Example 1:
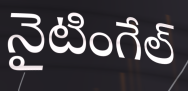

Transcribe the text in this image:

నైటింగేల్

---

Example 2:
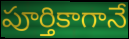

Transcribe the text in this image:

పూర్తికాగానే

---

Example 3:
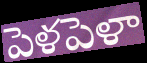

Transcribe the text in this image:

పెళపెళా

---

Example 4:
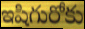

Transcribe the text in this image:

ఇషిగురోకు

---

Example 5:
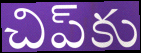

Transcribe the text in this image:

చిప్‌కు